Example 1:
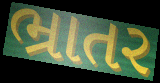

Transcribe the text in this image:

ભ્રાતર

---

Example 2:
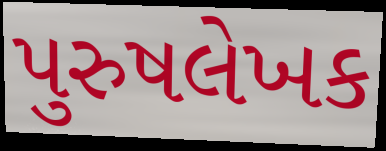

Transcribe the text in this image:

પુરુષલેખક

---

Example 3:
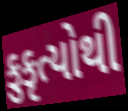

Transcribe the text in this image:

કુકૃત્યોથી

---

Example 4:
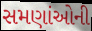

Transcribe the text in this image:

સમણાંઓની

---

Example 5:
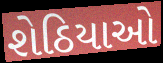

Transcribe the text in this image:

શેઠિયાઓ